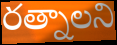
రత్నాలని